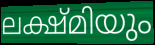
ലക്ഷ്മിയും